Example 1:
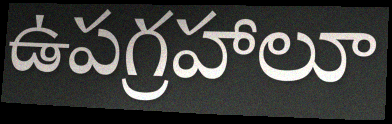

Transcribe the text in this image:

ఉపగ్రహాలూ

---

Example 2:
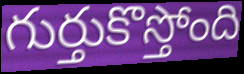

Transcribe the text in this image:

గుర్తుకొస్తోంది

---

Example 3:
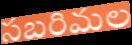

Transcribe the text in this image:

సబరిమల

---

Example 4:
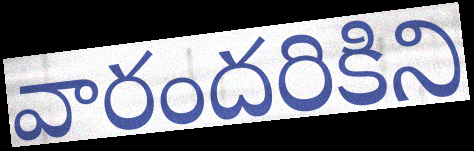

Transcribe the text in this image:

వారందరికిని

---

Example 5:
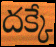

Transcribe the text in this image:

దక్కే